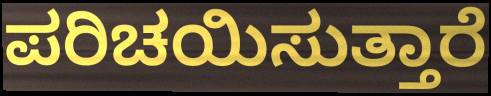
ಪರಿಚಯಿಸುತ್ತಾರೆ